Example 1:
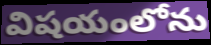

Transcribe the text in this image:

విషయంలోను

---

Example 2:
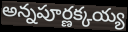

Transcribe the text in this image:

అన్నపూర్ణక్కయ్య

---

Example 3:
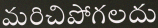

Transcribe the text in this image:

మరిచిపోగలదు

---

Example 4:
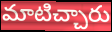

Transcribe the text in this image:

మాటిచ్చారు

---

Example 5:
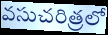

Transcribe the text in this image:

వసుచరిత్రలో